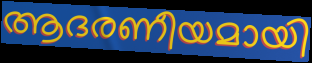
ആദരണീയമായി